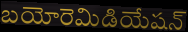
బయోరెమిడియేషన్